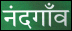
नंदगाँव